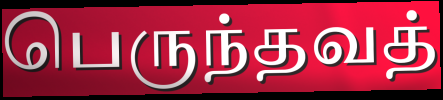
பெருந்தவத்